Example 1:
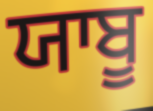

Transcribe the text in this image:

ਯਾਬੂ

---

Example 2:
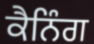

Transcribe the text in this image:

ਕੈਨਿੰਗ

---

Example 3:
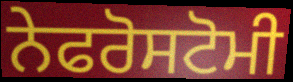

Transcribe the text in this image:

ਨੇਫਰੋਸਟੋਮੀ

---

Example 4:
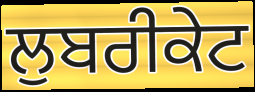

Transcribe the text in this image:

ਲੁਬਰੀਕੇਟ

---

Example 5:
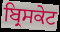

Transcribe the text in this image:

ਬ੍ਰਿਸਕੇਟ